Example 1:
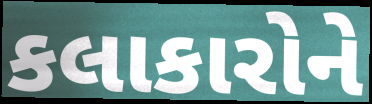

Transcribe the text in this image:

કલાકારોને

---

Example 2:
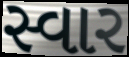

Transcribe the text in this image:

સ્વાર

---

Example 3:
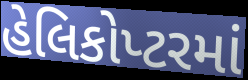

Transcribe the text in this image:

હેલિકોપ્ટરમાં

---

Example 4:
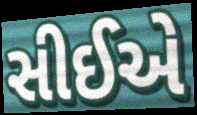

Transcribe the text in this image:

સીઈએ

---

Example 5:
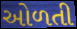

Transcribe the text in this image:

ઓળતી